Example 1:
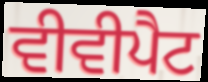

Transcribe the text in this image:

ਵੀਵੀਪੈਟ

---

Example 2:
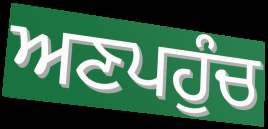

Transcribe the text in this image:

ਅਣਪਹੁੰਚ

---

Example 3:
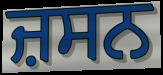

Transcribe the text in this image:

ਜ਼ਸਨ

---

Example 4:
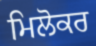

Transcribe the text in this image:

ਮਿਲੋਕਰ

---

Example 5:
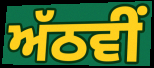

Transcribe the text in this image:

ਅੱਠਵੀਂ